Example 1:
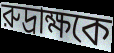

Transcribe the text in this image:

রুদ্রাক্ষকে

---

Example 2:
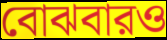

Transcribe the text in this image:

বোঝবারও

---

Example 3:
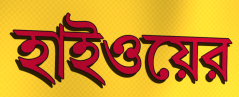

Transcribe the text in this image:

হাইওয়ের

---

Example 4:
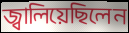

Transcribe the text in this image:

জ্বালিয়েছিলেন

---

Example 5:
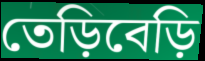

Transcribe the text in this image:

তেড়িবেড়ি